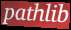
pathlib